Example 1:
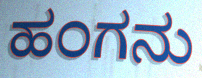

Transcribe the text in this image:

ಹಂಗನು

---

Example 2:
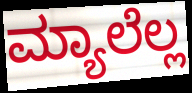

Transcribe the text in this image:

ಮ್ಯಾಲೆಲ್ಲ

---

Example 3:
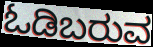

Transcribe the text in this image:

ಓಡಿಬರುವ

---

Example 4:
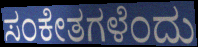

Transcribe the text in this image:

ಸಂಕೇತಗಳೆಂದು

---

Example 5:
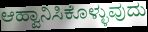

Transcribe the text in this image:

ಆಹ್ವಾನಿಸಿಕೊಳ್ಳುವುದು